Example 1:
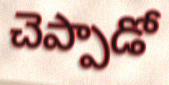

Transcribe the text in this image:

చెప్పాడో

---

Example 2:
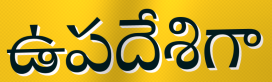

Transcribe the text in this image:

ఉపదేశిగా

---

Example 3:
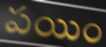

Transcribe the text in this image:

పయిం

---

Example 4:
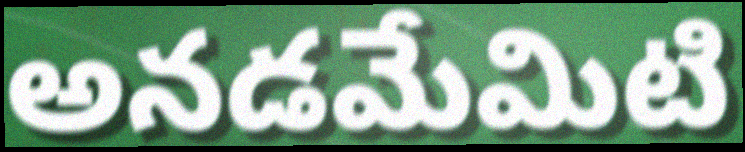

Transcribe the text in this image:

అనడమేమిటి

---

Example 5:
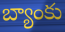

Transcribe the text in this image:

బ్యాంకు